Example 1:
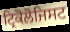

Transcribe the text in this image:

ਟ੍ਰਿਕੋਲੋਜਿਸਟ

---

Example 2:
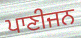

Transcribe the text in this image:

ਪਾਣੀਜਨ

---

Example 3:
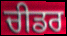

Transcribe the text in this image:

ਚੀਡਰ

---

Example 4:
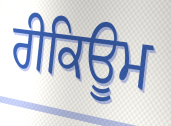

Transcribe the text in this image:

ਰੀਕਿਊਮ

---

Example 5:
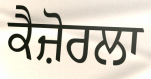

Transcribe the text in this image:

ਕੈਜ਼ੋਰਲਾ